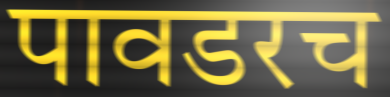
पावडरच